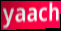
yaach